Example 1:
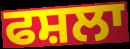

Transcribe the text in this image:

ਫਸ਼ਲਾ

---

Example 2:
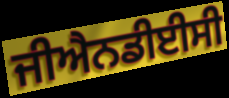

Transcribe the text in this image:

ਜੀਐਨਡੀਈਸੀ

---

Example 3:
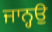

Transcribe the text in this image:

ਜਾਨ੍ਹਉ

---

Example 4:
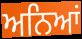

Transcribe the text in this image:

ਅਨਿਆਂ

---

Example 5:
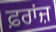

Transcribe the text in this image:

ਫ਼ਰਾਂਜ਼